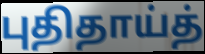
புதிதாய்த்